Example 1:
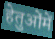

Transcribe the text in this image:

हेतुओंमें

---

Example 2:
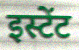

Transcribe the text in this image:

इस्टेंट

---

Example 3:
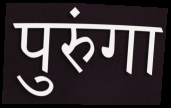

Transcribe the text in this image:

पुरुंगा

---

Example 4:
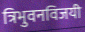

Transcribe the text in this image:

त्रिभुवनविजयी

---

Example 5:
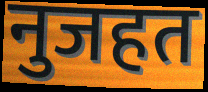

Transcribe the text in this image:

नुजहत